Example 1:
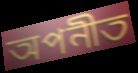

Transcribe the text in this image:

অপনীত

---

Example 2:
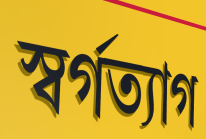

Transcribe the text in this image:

স্বর্গত্যাগ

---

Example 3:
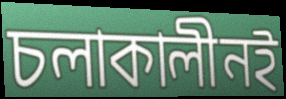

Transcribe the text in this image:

চলাকালীনই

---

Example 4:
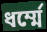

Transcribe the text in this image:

ধর্ম্মে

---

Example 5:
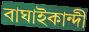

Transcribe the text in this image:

বাঘাইকান্দী